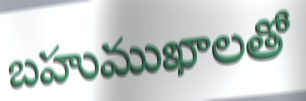
బహుముఖాలతో